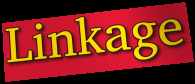
Linkage